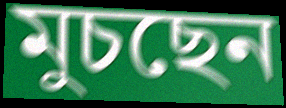
মুচছেন